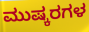
ಮುಷ್ಕರಗಳ